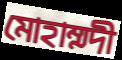
মোহাম্মদী